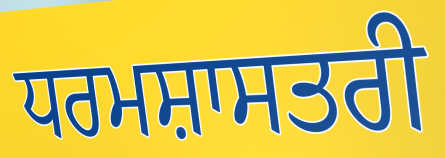
ਧਰਮਸ਼ਾਸਤਰੀ